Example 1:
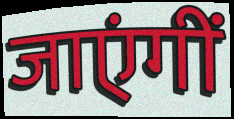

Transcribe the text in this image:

जाएंगीं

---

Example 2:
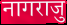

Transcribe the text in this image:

नागराजु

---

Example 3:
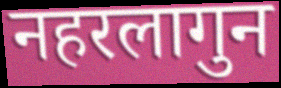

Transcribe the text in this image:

नहरलागुन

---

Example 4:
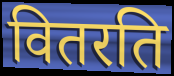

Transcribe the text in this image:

वितरति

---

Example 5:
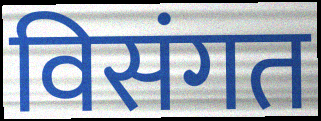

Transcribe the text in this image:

विसंगत